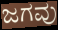
ಜಗವು